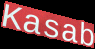
Kasab